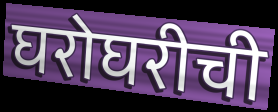
घरोघरीची